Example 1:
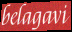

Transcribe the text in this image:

belagavi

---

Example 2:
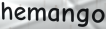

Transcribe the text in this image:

hemango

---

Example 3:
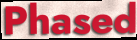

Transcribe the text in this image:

Phased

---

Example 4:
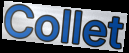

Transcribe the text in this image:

Collet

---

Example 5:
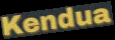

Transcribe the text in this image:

Kendua